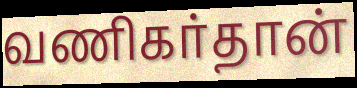
வணிகர்தான்